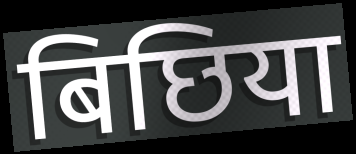
बिछिया